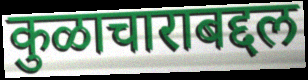
कुळाचाराबद्दल